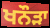
ਖਨੌੜਾ